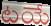
టయే